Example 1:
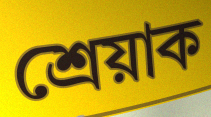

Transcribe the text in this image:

শ্ৰেয়াক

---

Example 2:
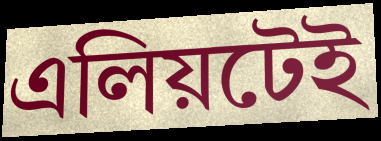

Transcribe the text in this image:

এলিয়টেই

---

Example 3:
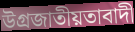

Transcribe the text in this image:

উগ্ৰজাতীয়তাবাদী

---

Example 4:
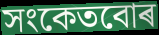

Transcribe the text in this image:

সংকেতবোৰ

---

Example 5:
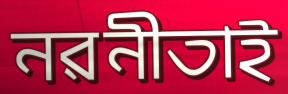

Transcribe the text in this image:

নৱনীতাই